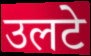
उलटे